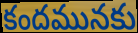
కందమునకు